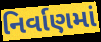
નિર્વાણમાં